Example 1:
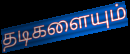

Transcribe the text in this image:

தடிகளையும்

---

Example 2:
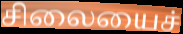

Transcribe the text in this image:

சிலையைச்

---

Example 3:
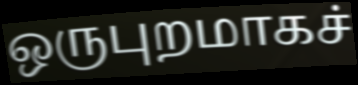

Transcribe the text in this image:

ஒருபுறமாகச்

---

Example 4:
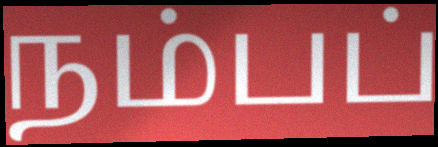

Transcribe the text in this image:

நம்பப்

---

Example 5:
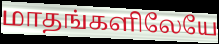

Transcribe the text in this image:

மாதங்களிலேயே